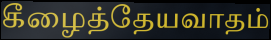
கீழைத்தேயவாதம்